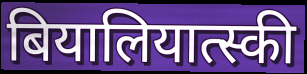
बियालियात्स्की